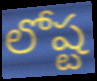
లోష్ట